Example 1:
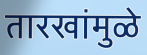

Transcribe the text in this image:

तारखांमुळे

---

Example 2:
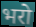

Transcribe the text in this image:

भरो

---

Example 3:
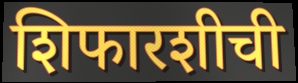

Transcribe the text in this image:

शिफारशीची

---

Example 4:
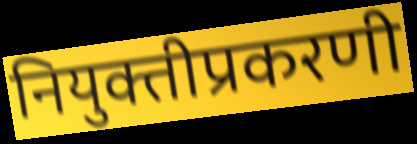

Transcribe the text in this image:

नियुक्तीप्रकरणी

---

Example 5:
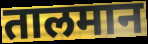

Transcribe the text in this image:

तालमान